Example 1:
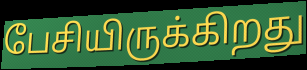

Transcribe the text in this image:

பேசியிருக்கிறது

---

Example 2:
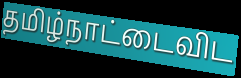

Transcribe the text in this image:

தமிழ்நாட்டைவிட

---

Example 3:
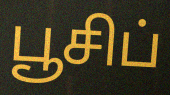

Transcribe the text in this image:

பூசிப்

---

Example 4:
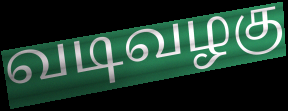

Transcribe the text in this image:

வடிவழகு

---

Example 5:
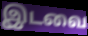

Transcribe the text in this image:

இடவை